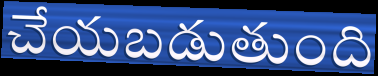
చేయబడుతుంది